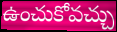
ఉంచుకోవచ్చు